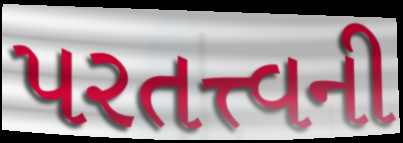
પરતત્ત્વની